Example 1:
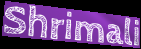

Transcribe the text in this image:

Shrimali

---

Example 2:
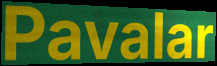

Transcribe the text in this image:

Pavalar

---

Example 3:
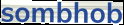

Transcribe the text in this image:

sombhob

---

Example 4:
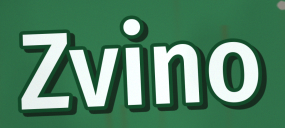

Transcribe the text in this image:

Zvino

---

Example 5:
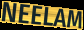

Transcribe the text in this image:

NEELAM